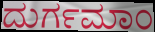
ದುರ್ಗಮಾಂ